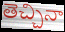
తెచ్చినా